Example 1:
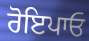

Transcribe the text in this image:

ਰੋਇਪਾਓ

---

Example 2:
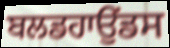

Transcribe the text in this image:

ਬਲਡਹਾਉਂਡਸ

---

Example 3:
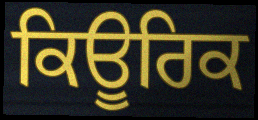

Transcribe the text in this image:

ਕਿਊਰਿਕ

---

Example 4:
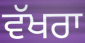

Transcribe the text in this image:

ਵੱਖਰਾ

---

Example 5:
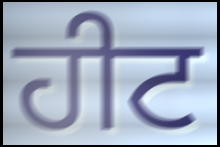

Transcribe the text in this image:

ਹੀਟ